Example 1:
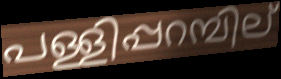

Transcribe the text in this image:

പള്ളിപ്പറമ്പില്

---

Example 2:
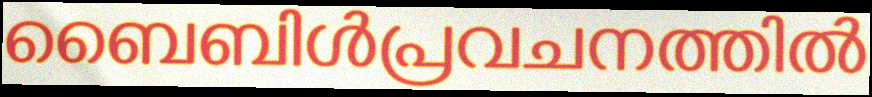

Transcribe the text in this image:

ബൈബിൾപ്രവചനത്തിൽ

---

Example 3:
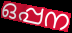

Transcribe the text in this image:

ഒപ്പന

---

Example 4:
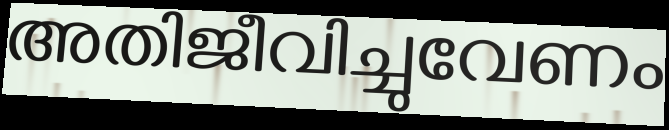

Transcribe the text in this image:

അതിജീവിച്ചുവേണം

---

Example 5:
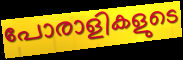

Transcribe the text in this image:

പോരാളികളുടെ